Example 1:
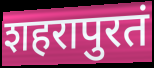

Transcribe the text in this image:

शहरापुरतं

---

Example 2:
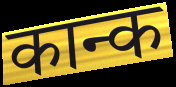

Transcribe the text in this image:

कान्क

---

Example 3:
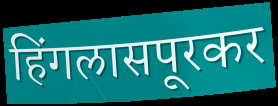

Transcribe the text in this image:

हिंगलासपूरकर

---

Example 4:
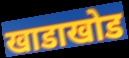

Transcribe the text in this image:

खाडाखोड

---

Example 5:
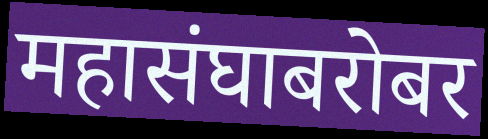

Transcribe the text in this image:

महासंघाबरोबर